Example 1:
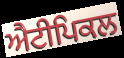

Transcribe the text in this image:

ਐਟੀਪਿਕਲ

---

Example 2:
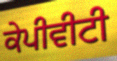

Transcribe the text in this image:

ਕੇਪੀਵੀਟੀ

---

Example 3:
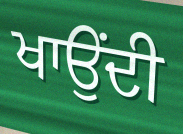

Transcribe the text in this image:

ਖਾਉਂਦੀ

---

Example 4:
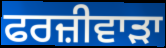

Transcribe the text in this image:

ਫਰਜ਼ੀਵਾਡ਼ਾ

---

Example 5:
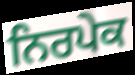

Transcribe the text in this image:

ਨਿਰਪੇਕ